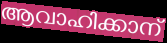
ആവാഹിക്കാന്